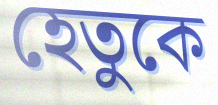
হেতুকে